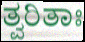
ತ್ವರಿತಾಃ